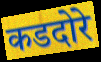
कडदोरे